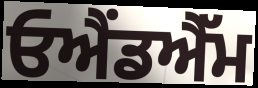
ਓਐਂਡਐੱਮ